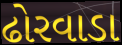
ઢોરવાડા